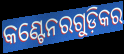
କଣ୍ଟେନରଗୁଡ଼ିକର